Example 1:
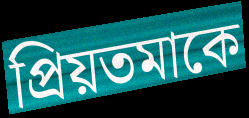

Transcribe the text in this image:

প্রিয়তমাকে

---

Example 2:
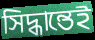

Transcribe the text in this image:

সিদ্ধান্তেই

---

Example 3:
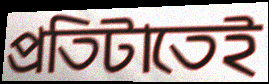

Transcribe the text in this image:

প্রতিটাতেই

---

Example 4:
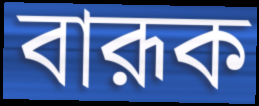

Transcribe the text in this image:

বারূক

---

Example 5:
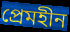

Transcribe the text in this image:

প্রেমহীন